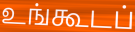
உங்கூடப்